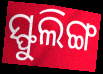
ସ୍ଫୁଲିଙ୍ଗ